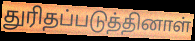
துரிதப்படுத்தினாள்